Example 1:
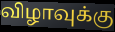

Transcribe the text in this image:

விழாவுக்கு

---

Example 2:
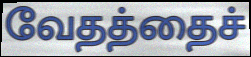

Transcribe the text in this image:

வேதத்தைச்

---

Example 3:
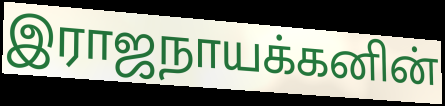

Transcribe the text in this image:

இராஜநாயக்கனின்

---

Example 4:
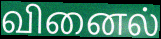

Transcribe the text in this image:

வினைல்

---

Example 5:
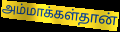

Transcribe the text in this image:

அம்மாக்கள்தான்